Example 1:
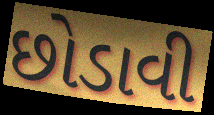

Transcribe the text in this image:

છોડાવી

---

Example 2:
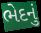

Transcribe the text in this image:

ભેદનું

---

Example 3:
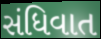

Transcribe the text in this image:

સંધિવાત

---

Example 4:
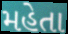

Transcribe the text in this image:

મહેતા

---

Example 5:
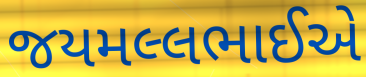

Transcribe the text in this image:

જયમલ્લભાઈએ